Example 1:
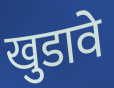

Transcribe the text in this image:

खुडावे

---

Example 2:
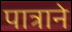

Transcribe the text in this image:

पात्राने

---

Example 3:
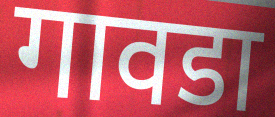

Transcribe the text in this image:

गावडा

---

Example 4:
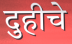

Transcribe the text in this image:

दुहीचे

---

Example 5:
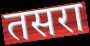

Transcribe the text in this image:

तसरा